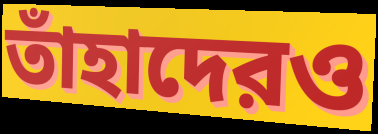
তাঁহাদেরও